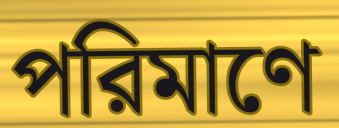
পরিমাণে